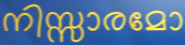
നിസ്സാരമോ